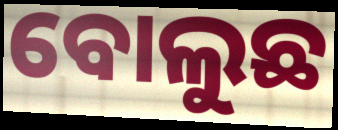
ବୋଲୁଛ